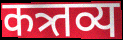
कत्र्तव्य